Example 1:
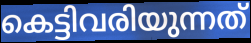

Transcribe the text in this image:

കെട്ടിവരിയുന്നത്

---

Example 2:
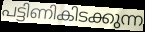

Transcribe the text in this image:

പട്ടിണികിടക്കുന്ന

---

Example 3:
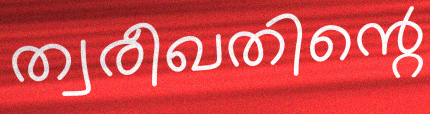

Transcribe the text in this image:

ത്വരീഖതിന്റെ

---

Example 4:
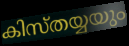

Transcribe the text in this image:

കിസ്തയ്യയും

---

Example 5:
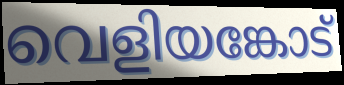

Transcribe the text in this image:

വെളിയങ്കോട്